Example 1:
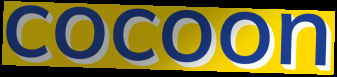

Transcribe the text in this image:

cocoon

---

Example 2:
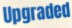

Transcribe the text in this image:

Upgraded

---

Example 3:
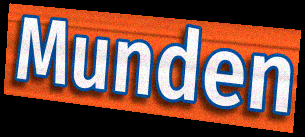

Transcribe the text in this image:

Munden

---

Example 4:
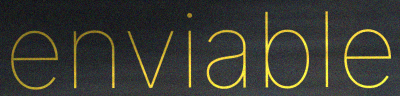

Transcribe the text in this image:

enviable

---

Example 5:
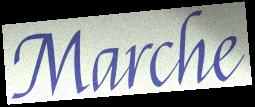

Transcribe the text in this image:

Marche